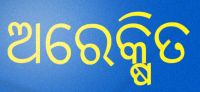
ଅରେକ୍ଷିତ